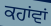
ਕਹਾਂਵਾਂ